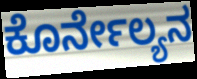
ಕೊರ್ನೇಲ್ಯನ